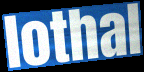
lothal